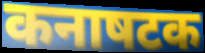
कनाषटक